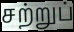
சற்றுப்